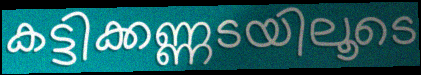
കട്ടിക്കണ്ണടയിലൂടെ